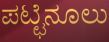
ಪಟ್ಟೆನೂಲು